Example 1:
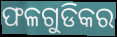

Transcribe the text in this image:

ଫଳଗୁଡିକର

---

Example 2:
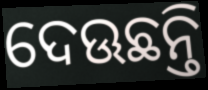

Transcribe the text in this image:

ଦେଊଛନ୍ତି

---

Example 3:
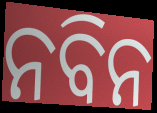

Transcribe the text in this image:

ନବିନ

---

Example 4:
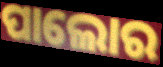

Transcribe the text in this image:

ପାଲୋର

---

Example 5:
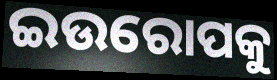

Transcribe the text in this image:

ଇଉରୋପକୁ